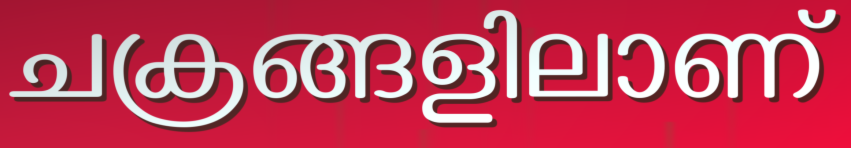
ചക്രങ്ങളിലാണ്